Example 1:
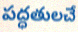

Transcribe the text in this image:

పద్ధతులచే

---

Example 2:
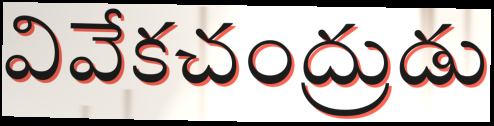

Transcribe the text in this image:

వివేకచంద్రుడు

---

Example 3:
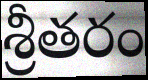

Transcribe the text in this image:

శ్రీతరం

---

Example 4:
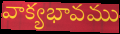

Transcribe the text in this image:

వాక్యభావము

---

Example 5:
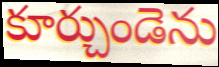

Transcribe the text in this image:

కూర్చుండెను